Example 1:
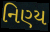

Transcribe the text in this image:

નિણ્ય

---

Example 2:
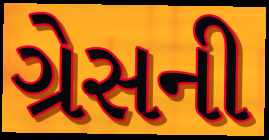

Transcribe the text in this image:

ગ્રેસની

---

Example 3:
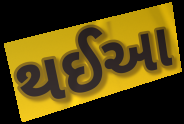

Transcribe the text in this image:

થઈઆ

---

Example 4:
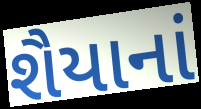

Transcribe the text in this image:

શૈયાનાં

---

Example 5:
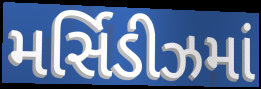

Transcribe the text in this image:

મર્સિડીઝમાં